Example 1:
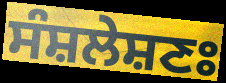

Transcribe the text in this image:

ਸੰਸ਼ਲੇਸ਼ਣਃ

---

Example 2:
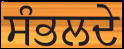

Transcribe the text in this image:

ਸੰਭਲਦੇ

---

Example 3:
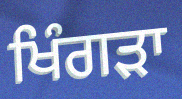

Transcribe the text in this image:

ਖਿੰਗੜਾ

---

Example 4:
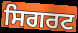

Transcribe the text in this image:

ਸਿਗਰਟ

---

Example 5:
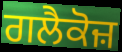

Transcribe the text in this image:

ਗਲੈਕੋਜ਼